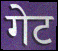
गेट